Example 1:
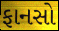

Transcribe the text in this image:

ફાનસો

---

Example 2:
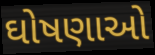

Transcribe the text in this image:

ઘોષણાઓ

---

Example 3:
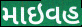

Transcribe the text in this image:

માઇવહ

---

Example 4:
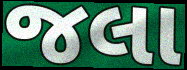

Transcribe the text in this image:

જલા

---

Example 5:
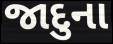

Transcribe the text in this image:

જાદુના